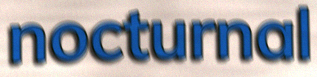
nocturnal